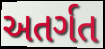
અતર્ગત